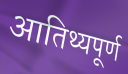
आतिथ्यपूर्ण